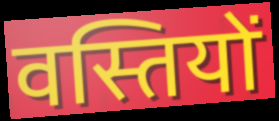
वस्तियों